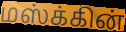
மஸ்க்கின்